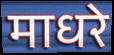
माधरे